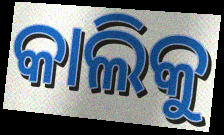
କାଲିକୁ